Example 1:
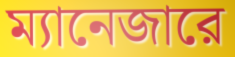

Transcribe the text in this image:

ম্যানেজারে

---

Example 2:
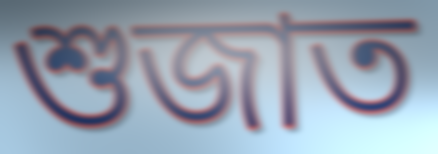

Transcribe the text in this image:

শুজাত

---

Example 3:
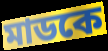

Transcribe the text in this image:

মাডকে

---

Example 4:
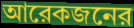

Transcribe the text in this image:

আরেকজনের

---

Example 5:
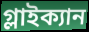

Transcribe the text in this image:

গ্লাইক্যান